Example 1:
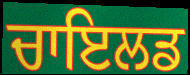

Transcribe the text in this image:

ਚਾਇਲਡ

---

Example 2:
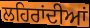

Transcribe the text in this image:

ਲਹਿਰਾਂਦੀਆਂ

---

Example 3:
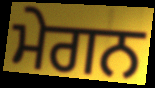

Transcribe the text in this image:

ਮੇਗਨ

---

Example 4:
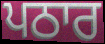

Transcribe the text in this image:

ਪਠਾਰ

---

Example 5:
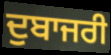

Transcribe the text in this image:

ਦੁਬਾਜਰੀ